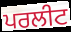
ਪਰਲੀਟ